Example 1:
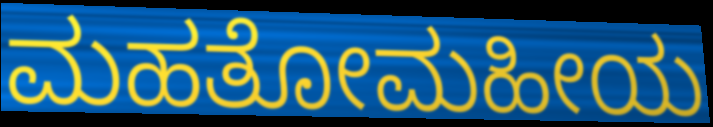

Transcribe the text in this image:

ಮಹತೋಮಹೀಯ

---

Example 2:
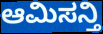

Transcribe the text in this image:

ಆಮಿಸನ್ತಿ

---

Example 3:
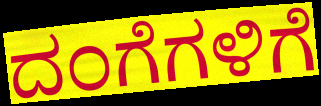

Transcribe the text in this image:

ದಂಗೆಗಳಿಗೆ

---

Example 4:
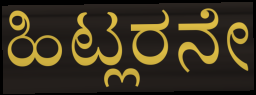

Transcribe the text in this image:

ಹಿಟ್ಲರನೇ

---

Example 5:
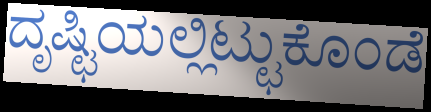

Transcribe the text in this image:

ದೃಷ್ಟಿಯಲ್ಲಿಟ್ಟುಕೊಂಡೆ